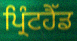
ਪ੍ਰਿੰਟਹੈੱਡ